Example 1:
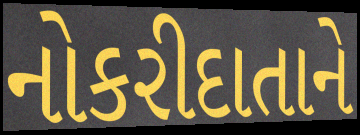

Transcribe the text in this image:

નોકરીદાતાને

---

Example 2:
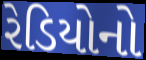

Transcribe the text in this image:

રેડિયોનો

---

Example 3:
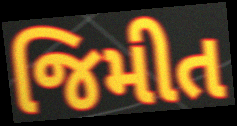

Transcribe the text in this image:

જિમીત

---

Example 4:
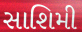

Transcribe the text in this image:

સાશિમી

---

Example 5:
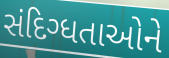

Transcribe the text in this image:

સંદિગ્ધતાઓને